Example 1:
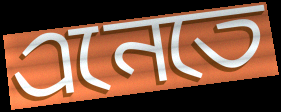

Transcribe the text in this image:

এনেতে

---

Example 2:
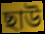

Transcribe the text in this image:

ছাউ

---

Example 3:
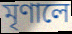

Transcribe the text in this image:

মৃণালে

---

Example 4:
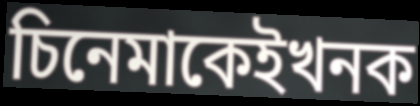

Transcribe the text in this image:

চিনেমাকেইখনক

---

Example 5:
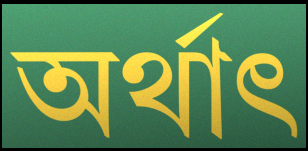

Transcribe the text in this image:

অৰ্থাৎ